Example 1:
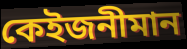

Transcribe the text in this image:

কেইজনীমান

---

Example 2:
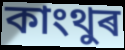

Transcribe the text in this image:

কাংথুৰ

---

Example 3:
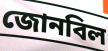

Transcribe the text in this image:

জোনবিল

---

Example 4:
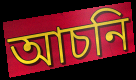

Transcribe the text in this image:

আচনি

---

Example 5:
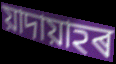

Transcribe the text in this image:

য়াদায়াহৰ